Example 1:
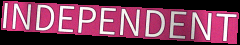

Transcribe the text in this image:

INDEPENDENT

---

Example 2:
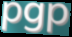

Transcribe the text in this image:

pgp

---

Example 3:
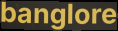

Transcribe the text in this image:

banglore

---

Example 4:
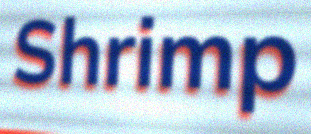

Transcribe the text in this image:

Shrimp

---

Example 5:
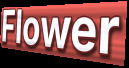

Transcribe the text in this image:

Flower